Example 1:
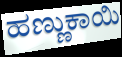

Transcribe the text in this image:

ಹಣ್ಣುಕಾಯಿ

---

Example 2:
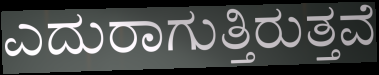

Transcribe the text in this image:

ಎದುರಾಗುತ್ತಿರುತ್ತವೆ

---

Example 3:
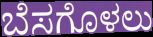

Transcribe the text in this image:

ಬೆಸಗೊಳಲು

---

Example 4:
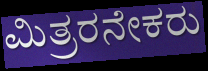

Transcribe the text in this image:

ಮಿತ್ರರನೇಕರು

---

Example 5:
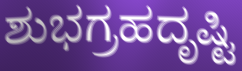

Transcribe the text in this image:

ಶುಭಗ್ರಹದೃಷ್ಟಿ